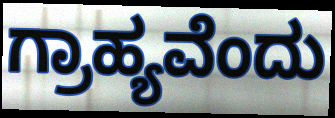
ಗ್ರಾಹ್ಯವೆಂದು